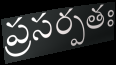
ప్రసర్పతః